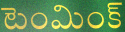
టెంమింక్